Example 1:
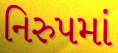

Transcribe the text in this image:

નિરુપમાં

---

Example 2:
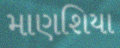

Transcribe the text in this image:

માણશિયા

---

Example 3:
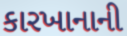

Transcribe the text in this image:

કારખાનાની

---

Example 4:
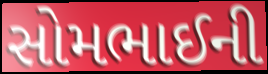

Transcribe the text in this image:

સોમભાઈની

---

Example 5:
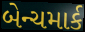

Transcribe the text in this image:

બેન્ચમાર્ક